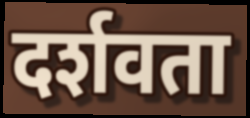
दर्शवता